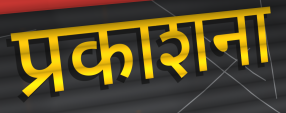
प्रकाशना